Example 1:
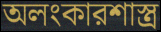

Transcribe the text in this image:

অলংকারশাস্ত্র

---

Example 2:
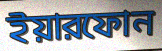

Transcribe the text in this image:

ইয়ারফোন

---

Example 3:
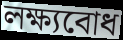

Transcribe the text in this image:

লক্ষ্যবোধ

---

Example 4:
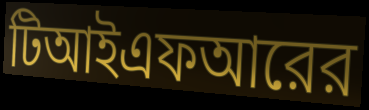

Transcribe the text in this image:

টিআইএফআরের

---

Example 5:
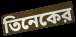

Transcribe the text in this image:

তিনেকের